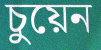
চুয়েন